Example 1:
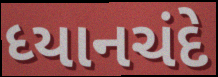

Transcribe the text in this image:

ધ્યાનચંદે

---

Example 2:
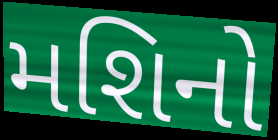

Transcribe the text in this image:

મશિનો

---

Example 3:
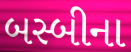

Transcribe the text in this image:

બસ્બીના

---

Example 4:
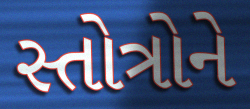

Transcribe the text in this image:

સ્તોત્રોને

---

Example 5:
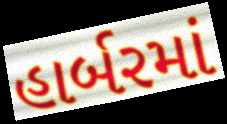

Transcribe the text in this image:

હાર્બરમાં